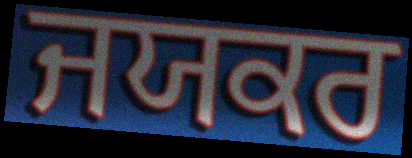
ਜਯਕਰ